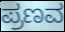
ಪ್ರಣವ